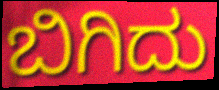
ಬಿಗಿದು